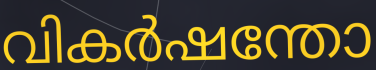
വികർഷന്തോ